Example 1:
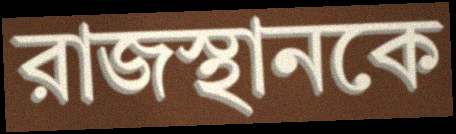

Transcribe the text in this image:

রাজস্থানকে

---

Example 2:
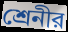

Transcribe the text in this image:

শ্রেনীর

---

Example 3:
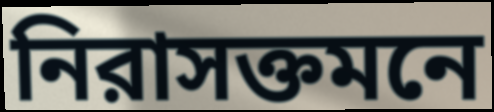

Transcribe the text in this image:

নিরাসক্তমনে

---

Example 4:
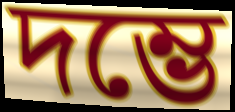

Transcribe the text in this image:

দম্ভে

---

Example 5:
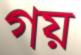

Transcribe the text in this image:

গয়